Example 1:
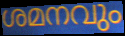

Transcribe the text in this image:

ശമനവും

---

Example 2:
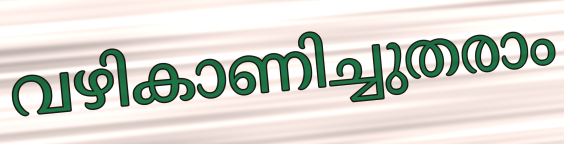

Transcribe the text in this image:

വഴികാണിച്ചുതരാം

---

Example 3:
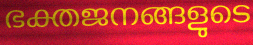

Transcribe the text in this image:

ഭക്തജനങ്ങളുടെ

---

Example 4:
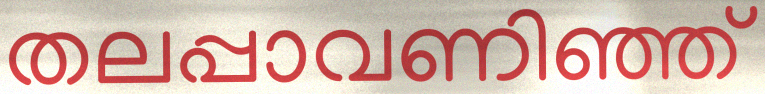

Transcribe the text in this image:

തലപ്പാവണിഞ്ഞ്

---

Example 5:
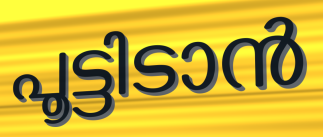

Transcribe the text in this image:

പൂട്ടിടാൻ